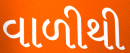
વાળીથી